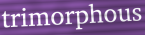
trimorphous